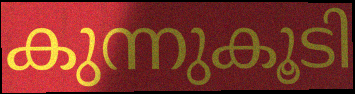
കുന്നുകൂടി